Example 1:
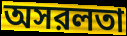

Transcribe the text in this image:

অসরলতা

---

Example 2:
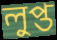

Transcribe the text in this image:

লুপ্ত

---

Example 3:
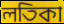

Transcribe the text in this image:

লতিকা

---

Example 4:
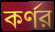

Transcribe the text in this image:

কর্ণর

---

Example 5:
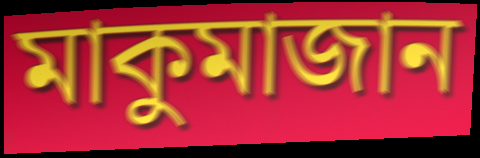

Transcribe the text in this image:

মাকুমাজান